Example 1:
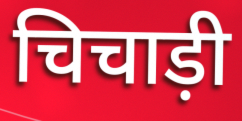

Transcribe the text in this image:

चिचाड़ी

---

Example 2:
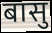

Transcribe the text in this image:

बासु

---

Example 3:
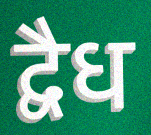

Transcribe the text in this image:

द्वैध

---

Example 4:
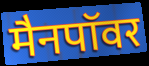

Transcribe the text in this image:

मैनपॉवर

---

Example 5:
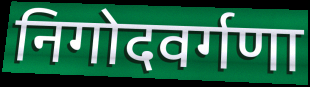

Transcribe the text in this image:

निगोदवर्गणा